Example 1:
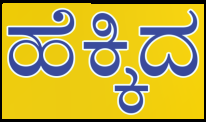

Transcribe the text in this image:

ಹೆಕ್ಕಿದ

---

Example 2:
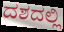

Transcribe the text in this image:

ದಶದಲ್ಲಿ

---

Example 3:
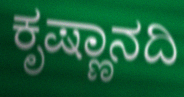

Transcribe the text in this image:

ಕೃಷ್ಣಾನದಿ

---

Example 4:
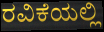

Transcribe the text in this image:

ರವಿಕೆಯಲ್ಲಿ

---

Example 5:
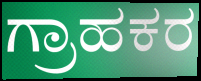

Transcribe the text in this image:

ಗ್ರಾಹಕರ